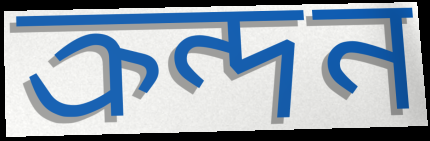
ক্রন্দন